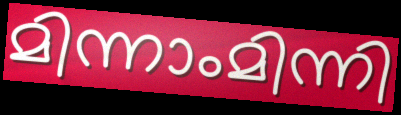
മിന്നാംമിന്നി